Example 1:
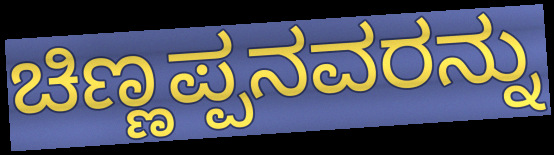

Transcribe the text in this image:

ಚಿಣ್ಣಪ್ಪನವರನ್ನು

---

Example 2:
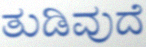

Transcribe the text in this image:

ತುಡಿವುದೆ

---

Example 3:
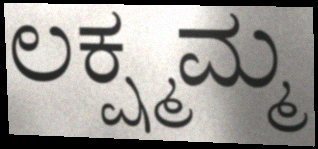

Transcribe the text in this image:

ಲಕ್ಷ್ಮಮ್ಮ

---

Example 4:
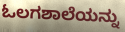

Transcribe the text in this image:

ಓಲಗಶಾಲೆಯನ್ನು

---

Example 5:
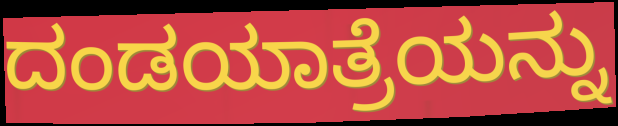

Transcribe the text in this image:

ದಂಡಯಾತ್ರೆಯನ್ನು